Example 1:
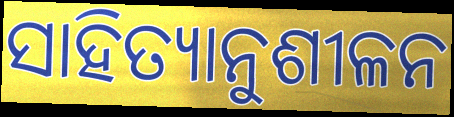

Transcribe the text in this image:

ସାହିତ୍ୟାନୁଶୀଳନ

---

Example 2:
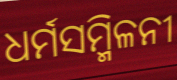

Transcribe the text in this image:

ଧର୍ମସମ୍ମିଳନୀ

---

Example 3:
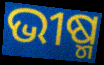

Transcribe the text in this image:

ଭୀଷ୍ମ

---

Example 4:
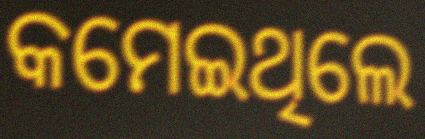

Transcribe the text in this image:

କମେଇଥିଲେ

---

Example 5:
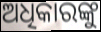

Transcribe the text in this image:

ଅଧିକାରଙ୍କୁ